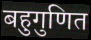
बहुगुणित